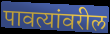
पावत्यांवरील